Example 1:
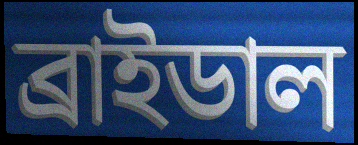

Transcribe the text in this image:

ব্রাইডাল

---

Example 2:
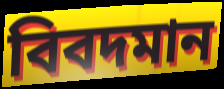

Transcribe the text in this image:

বিবদমান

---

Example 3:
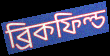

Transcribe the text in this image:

ব্রিকফিল্ড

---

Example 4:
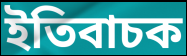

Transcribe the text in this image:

ইতিবাচক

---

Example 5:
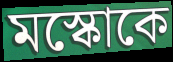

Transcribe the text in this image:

মস্কোকে